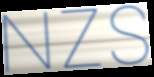
NZS